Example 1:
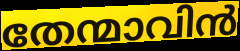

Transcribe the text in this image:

തേന്മാവിൻ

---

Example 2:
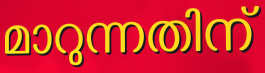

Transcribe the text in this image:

മാറുന്നതിന്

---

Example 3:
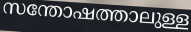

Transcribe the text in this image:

സന്തോഷത്താലുള്ള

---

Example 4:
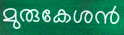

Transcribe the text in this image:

മുരുകേശൻ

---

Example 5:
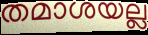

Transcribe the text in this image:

തമാശയല്ല